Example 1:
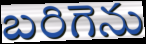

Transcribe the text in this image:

బరిగెను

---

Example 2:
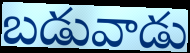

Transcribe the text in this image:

బడువాడు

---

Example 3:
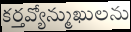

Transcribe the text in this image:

కర్తవ్యోన్ముఖులను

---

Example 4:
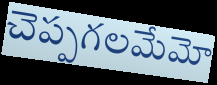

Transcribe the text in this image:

చెప్పగలమేమో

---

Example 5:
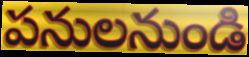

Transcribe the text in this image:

పనులనుండి